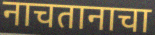
नाचतानाचा